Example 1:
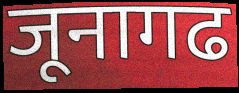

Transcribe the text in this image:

जूनागढ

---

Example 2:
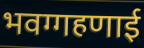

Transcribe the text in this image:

भवग्गहणाई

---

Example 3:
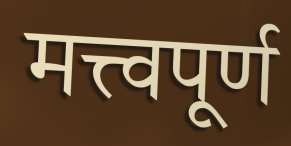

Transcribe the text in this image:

मत्त्वपूर्ण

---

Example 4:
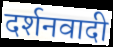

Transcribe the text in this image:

दर्शनवादी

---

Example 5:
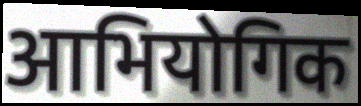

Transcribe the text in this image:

आभियोगिक